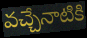
వచ్చేనాటికి